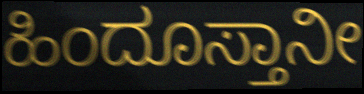
ಹಿಂದೂಸ್ತಾನೀ